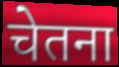
चेतना